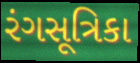
રંગસૂત્રિકા